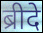
ब्रीदे